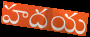
హదయ